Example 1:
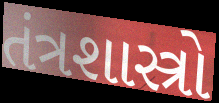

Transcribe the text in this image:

તંત્રશાસ્ત્રો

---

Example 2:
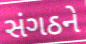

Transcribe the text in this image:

સંગઠને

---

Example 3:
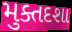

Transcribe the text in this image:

મુક્તદશા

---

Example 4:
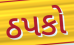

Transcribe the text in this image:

ઠપકો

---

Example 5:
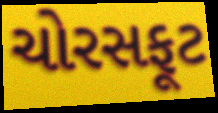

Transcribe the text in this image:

ચોરસફૂટ